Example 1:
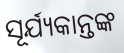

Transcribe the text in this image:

ସୂର୍ଯ୍ୟକାନ୍ତଙ୍କ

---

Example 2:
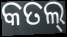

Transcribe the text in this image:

କତଲ୍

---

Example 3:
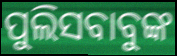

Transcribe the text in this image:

ପୁଲିସବାବୁଙ୍କ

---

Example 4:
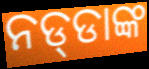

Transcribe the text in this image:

ନଡ୍‌ଡାଙ୍କ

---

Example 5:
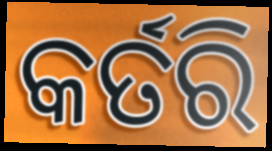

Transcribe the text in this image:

କର୍ତରି